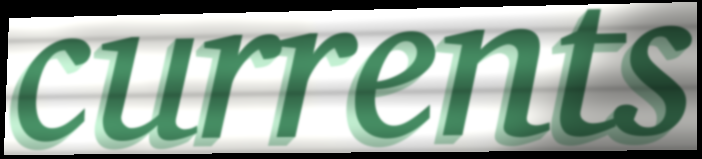
currents